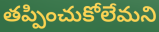
తప్పించుకోలేమని